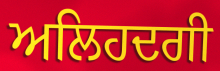
ਅਲਿਹਦਗੀ